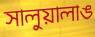
সালুয়ালাঙ